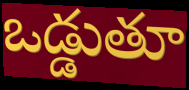
ఒడ్డుతూ